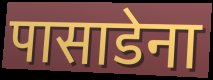
पासाडेना